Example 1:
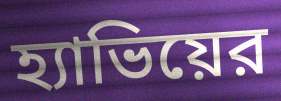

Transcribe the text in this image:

হ্যাভিয়ের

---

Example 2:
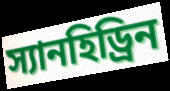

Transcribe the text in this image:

স্যানহিড্রিন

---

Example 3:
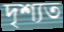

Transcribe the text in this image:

দৃশ্যত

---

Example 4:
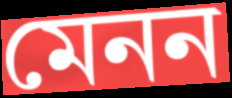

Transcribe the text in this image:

মেনন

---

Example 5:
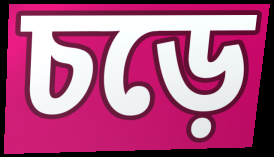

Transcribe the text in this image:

চড়ে